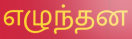
எழுந்தன